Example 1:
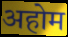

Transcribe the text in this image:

अहोम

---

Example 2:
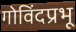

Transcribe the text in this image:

गोविंदप्रभू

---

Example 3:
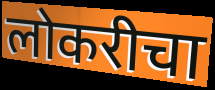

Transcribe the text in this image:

लोकरीचा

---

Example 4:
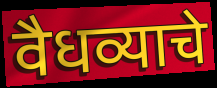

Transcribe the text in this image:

वैधव्याचे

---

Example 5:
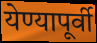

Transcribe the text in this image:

येण्यापूर्वी